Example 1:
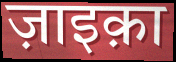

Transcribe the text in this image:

ज़ाइक़ा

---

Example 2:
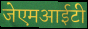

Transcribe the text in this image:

जेएमआईटी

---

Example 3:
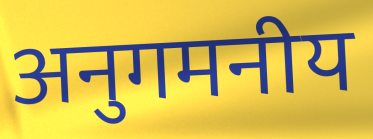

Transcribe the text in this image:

अनुगमनीय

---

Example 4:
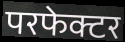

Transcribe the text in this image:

परफेक्टर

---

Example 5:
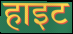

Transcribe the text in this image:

हाइट